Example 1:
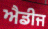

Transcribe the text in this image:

ਐਡੀਜ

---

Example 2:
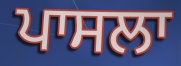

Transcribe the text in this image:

ਪਾਸਲਾ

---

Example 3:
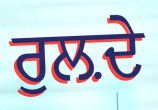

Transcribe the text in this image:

ਰੁਲ਼ਦੇ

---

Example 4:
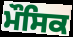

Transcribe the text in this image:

ਮੌਸਿਕ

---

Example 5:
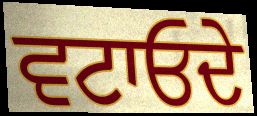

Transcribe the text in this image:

ਵਟਾਓਦੇ